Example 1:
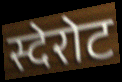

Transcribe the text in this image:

स्देरोट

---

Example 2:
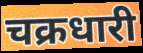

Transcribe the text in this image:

चक्रधारी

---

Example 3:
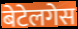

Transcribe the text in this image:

बेटेलगेस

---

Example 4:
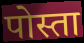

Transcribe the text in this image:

पोस्ता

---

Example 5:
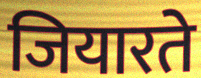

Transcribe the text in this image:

जियारते